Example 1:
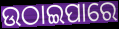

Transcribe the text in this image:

ଉଠାଇପାରେ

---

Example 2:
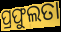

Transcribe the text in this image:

ପ୍ରଫୁଲତା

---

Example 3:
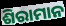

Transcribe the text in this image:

ଶିରାମାନ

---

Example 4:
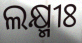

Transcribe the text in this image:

ଲକ୍ଷ୍ମୀଃ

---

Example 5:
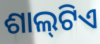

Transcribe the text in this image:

ଶାଲ୍‌ଟିଏ